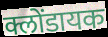
क्लोंडायक